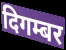
दिगम्बर